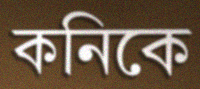
কনিকে